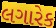
લગારેક